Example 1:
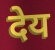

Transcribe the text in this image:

देय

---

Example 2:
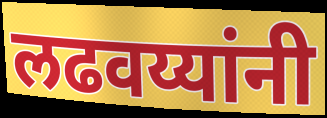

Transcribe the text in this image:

लढवय्यांनी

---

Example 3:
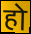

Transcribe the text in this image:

हो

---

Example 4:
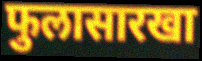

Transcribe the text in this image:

फुलासारखा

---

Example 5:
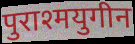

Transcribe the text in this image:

पुराश्मयुगीन